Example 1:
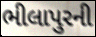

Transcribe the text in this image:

ભીલાપુરની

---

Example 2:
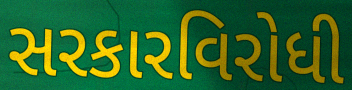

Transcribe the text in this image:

સરકારવિરોધી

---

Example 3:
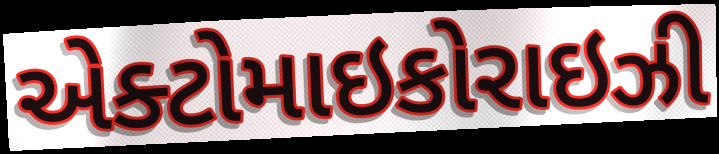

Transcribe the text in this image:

એક્ટોમાઇકોરાઇઝી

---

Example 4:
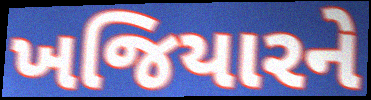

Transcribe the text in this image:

ખજિયારને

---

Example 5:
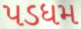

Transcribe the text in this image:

પડધમ